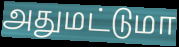
அதுமட்டுமா